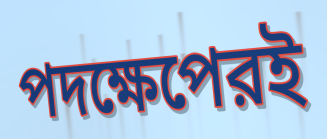
পদক্ষেপেরই